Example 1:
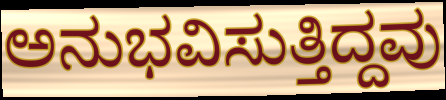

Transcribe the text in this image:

ಅನುಭವಿಸುತ್ತಿದ್ದವು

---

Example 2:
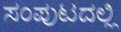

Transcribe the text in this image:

ಸಂಪುಟದಲ್ಲಿ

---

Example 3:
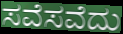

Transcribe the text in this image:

ಸವೆಸವೆದು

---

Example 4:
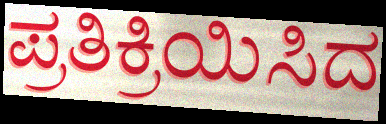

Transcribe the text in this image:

ಪ್ರತಿಕ್ರಿಯಿಸಿದ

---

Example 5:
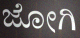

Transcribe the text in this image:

ಜೋಗಿ